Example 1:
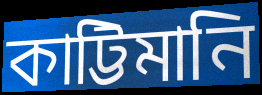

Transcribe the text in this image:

কাট্টিমানি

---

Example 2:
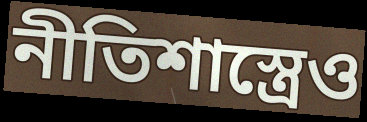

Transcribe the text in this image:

নীতিশাস্ত্রেও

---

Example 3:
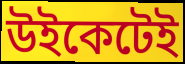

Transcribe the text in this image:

উইকেটেই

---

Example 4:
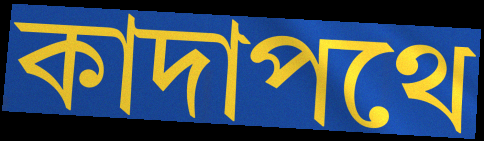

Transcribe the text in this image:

কাদাপথে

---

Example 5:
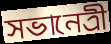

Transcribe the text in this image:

সভানেত্রী